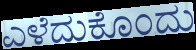
ಎಳೆದುಕೊಂದು